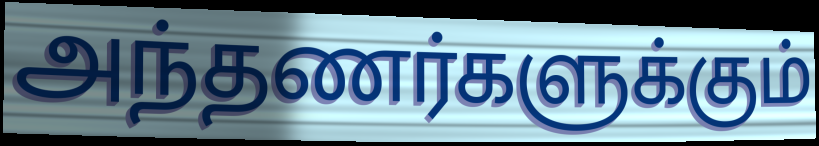
அந்தணர்களுக்கும்